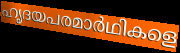
ഹൃദയപരമാർഥികളെ